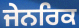
ਜੇਨਰਿਕ